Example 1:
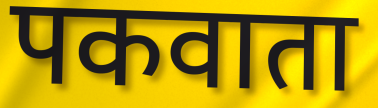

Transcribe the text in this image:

पकवाता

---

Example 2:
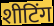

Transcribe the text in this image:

शीटिंग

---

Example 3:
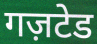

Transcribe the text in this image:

गज़टेड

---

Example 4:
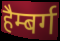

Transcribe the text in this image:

हैम्बर्ग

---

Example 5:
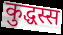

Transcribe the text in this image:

कुद्धस्स